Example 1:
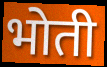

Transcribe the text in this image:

भोती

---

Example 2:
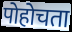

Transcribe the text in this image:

पोहोचता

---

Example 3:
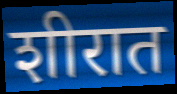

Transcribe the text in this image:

शीरात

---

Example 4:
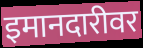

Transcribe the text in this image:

इमानदारीवर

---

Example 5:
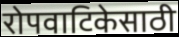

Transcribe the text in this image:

रोपवाटिकेसाठी